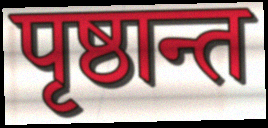
पृष्ठान्त